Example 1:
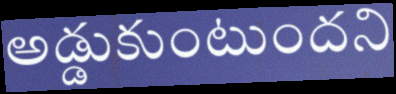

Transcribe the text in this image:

అడ్డుకుంటుందని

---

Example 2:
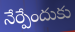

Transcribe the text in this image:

నేర్పేందుకు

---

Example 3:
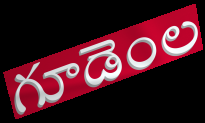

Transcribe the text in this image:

గూడెంల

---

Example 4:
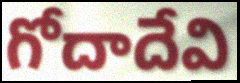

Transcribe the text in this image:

గోదాదేవి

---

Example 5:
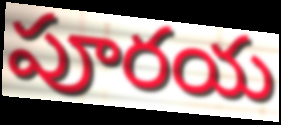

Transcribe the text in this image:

పూరయ